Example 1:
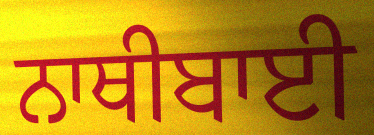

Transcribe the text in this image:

ਨਾਥੀਬਾਈ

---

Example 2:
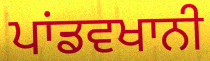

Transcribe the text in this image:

ਪਾਂਡਵਖਾਨੀ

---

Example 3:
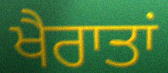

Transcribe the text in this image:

ਖੈਰਾਤਾਂ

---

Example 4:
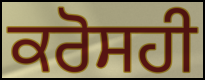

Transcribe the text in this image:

ਕਰੋਸਹੀ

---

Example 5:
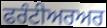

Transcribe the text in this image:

ਫਰੰਟੀਅਰਅਰ